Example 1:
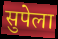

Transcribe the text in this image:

सुपेला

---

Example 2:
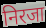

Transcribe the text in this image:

निरजा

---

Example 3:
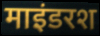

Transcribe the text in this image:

माइंडरश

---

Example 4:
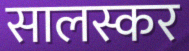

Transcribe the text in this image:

सालस्कर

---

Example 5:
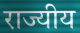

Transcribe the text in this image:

राज्यीय